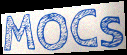
MOCs